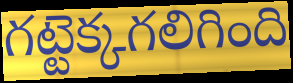
గట్టెక్కగలిగింది